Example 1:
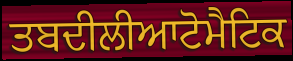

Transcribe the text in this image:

ਤਬਦੀਲੀਆਟੋਮੈਟਿਕ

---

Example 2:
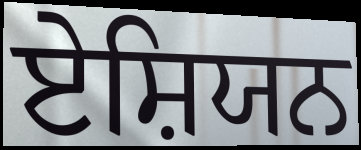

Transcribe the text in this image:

ਏਸ਼ਿਯਨ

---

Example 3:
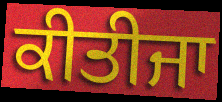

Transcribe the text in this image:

ਕੀਤੀਜਾ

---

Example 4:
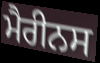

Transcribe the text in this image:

ਮੈਰੀਨਸ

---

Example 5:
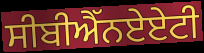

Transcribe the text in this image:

ਸੀਬੀਐੱਨਏਏਟੀ